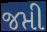
જપ્તી